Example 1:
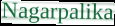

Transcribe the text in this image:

Nagarpalika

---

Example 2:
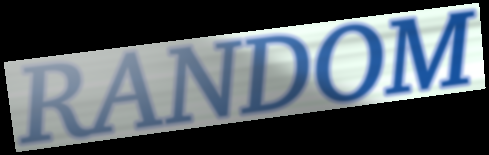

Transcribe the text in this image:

RANDOM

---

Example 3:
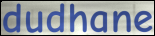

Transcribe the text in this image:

dudhane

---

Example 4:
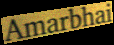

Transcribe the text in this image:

Amarbhai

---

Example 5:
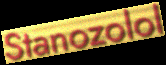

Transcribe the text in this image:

Stanozolol